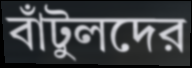
বাঁটুলদের